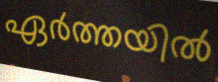
ഏർത്തയിൽ